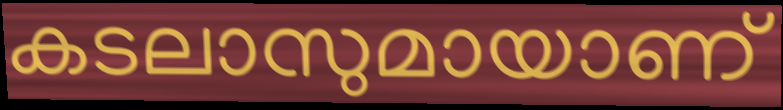
കടലാസുമായാണ്